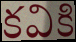
కవికి